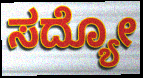
ಸದ್ಯೋ